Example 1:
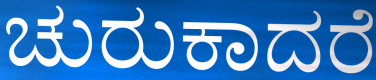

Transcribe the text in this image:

ಚುರುಕಾದರೆ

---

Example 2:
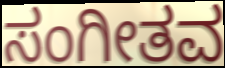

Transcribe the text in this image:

ಸಂಗೀತವ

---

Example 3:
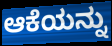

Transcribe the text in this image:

ಆಕೆಯನ್ನು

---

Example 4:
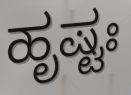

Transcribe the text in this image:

ಹೃಷ್ಟಃ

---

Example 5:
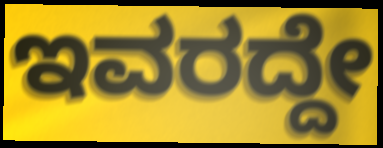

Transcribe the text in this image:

ಇವರದ್ದೇ